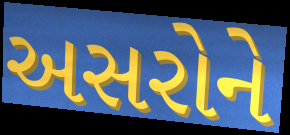
અસરોને